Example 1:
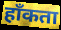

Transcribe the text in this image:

हाँकता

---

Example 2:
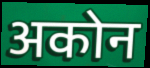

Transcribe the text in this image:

अकोन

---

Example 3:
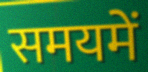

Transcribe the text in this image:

समयमें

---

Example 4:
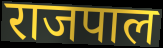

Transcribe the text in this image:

राजपाल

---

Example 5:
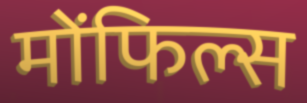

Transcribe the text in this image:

मोंफिल्स